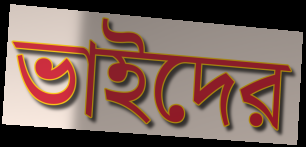
ভাইদের